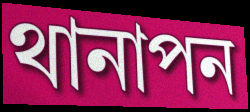
থানাপন